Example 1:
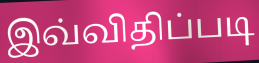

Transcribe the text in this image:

இவ்விதிப்படி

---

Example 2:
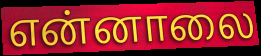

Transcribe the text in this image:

என்னாலை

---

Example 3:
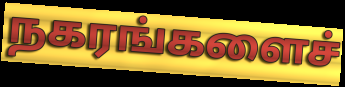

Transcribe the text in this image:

நகரங்களைச்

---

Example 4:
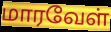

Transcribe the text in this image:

மாரவேள்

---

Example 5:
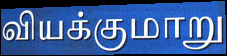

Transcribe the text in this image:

வியக்குமாறு